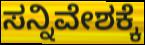
ಸನ್ನಿವೇಶಕ್ಕೆ